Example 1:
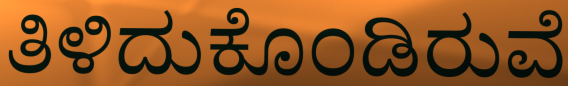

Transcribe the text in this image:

ತಿಳಿದುಕೊಂಡಿರುವೆ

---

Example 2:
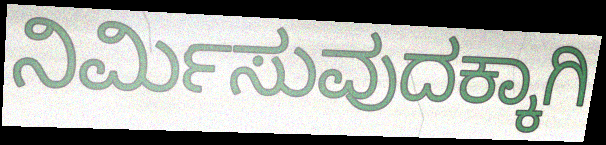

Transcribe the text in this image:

ನಿರ್ಮಿಸುವುದಕ್ಕಾಗಿ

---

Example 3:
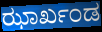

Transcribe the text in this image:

ಝಾರ್ಖಂಡ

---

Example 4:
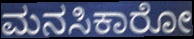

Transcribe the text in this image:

ಮನಸಿಕಾರೋ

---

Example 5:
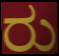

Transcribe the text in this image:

ರು